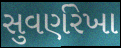
સુવર્ણરેખા